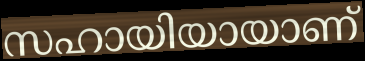
സഹായിയായാണ്